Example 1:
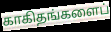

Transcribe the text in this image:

காகிதங்களைப்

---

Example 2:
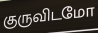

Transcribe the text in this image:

குருவிடமோ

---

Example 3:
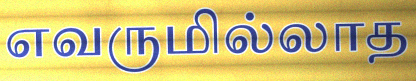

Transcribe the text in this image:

எவருமில்லாத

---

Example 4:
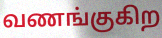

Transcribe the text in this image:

வணங்குகிற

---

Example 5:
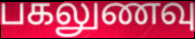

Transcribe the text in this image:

பகலுணவு